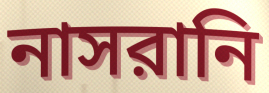
নাসরানি